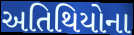
અતિથિયોના